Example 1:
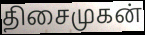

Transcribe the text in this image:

திசைமுகன்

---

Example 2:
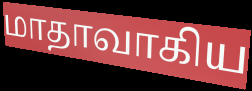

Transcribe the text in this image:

மாதாவாகிய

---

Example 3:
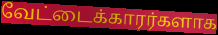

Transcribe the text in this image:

வேட்டைக்காரர்களாக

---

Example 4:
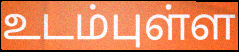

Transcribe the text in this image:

உடம்புள்ள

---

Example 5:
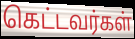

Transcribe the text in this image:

கெட்டவர்கள்